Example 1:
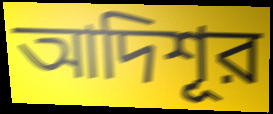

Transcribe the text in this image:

আদিশূর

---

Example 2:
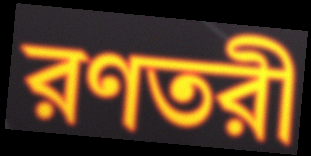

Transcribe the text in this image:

রণতরী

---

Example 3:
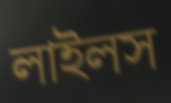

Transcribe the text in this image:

লাইলস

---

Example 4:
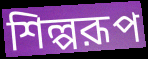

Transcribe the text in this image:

শিল্পরূপ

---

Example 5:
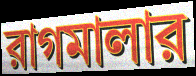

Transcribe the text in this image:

রাগমালার